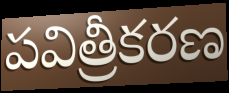
పవిత్రీకరణ